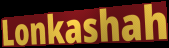
Lonkashah